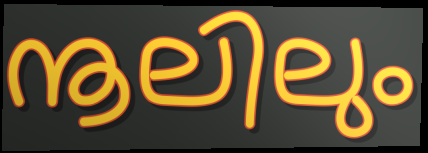
നൂലിലും